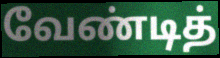
வேண்டித்